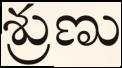
శ్రుణు